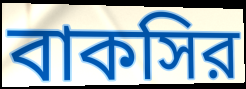
বাকসির